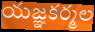
యజ్ఞకర్మల